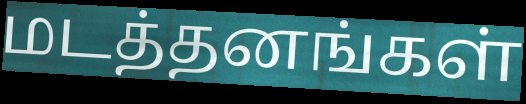
மடத்தனங்கள்